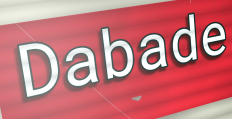
Dabade